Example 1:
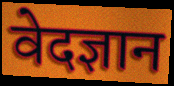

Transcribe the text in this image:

वेदज्ञान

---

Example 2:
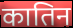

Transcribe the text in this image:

कातिन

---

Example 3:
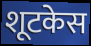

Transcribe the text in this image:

शूटकेस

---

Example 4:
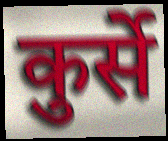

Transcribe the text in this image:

कुर्से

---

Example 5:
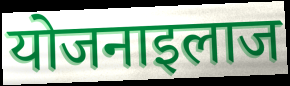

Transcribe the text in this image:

योजनाइलाज